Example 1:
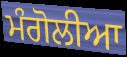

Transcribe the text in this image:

ਮੰਗੋਲੀਆ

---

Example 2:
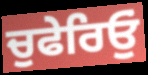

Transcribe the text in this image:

ਚੁਫੇਰਿਓੁਂ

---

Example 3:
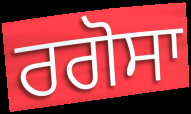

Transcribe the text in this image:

ਰਗੋਸਾ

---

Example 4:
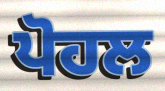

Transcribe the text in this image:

ਪੋਹਲ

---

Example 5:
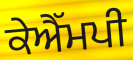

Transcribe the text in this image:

ਕੇਐੱਮਪੀ